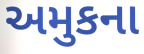
અમુકના